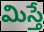
మిస్తే